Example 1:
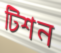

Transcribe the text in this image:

টিশন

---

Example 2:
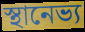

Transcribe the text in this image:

স্থানেভ্য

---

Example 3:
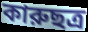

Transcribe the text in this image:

কারুছত্র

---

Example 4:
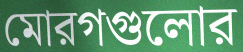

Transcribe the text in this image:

মোরগগুলোর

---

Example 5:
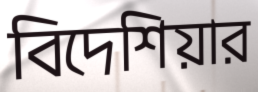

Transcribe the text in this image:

বিদেশিয়ার